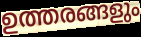
ഉത്തരങ്ങളും